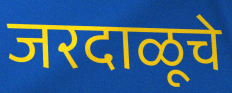
जरदाळूचे